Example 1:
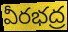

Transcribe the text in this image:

వీరభద్ర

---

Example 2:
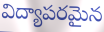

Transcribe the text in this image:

విద్యాపరమైన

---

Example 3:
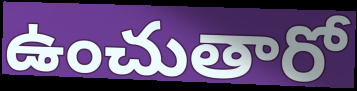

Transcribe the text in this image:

ఉంచుతారో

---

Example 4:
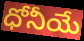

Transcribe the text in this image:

ధోనీయే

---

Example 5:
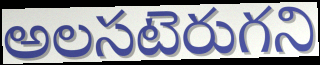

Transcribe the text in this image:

అలసటెరుగని